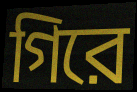
গিরে